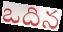
ఒదిన